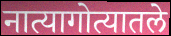
नात्यागोत्यातले